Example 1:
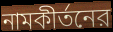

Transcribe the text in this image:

নামকীর্তনের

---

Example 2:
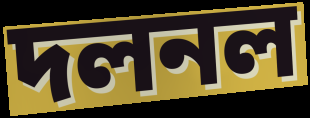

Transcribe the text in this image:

দলনল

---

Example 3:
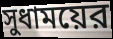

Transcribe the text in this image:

সুধাময়ের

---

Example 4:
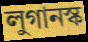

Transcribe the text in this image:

লুগানস্ক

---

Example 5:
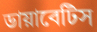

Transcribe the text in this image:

ডায়াবেটিস